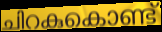
ചിറകുകൊണ്ട്